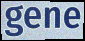
gene